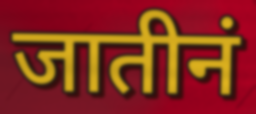
जातीनं